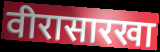
वीरासारखा